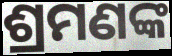
ଶ୍ରମଣଙ୍କ